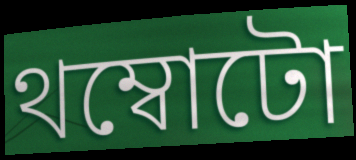
থম্বোটো